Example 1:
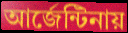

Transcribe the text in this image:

আর্জেন্টিনায়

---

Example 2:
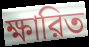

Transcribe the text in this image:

ক্ষারিত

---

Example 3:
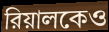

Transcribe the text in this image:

রিয়ালকেও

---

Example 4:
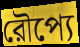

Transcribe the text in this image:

রৌপ্যে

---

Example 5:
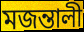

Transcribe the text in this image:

মজন্তালী